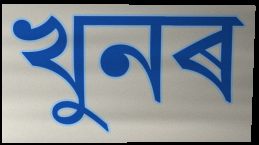
খুনৰ